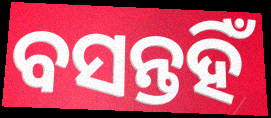
ବସନ୍ତହିଁ